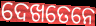
ଦେଖତେନେ